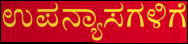
ಉಪನ್ಯಾಸಗಳಿಗೆ